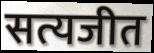
सत्यजीत